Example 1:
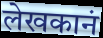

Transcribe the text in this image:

लेखकानं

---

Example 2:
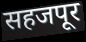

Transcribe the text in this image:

सहजपूर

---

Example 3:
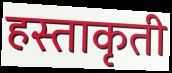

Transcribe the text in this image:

हस्ताकृती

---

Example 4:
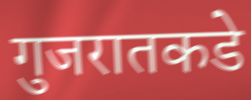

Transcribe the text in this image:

गुजरातकडे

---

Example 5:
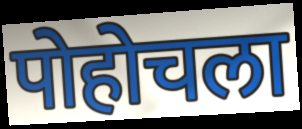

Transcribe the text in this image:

पोहोचला